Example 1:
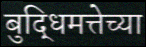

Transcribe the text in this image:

बुद्धिमत्तेच्या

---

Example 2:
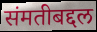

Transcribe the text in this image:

संमतीबद्दल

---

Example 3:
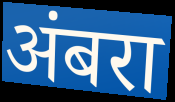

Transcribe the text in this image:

अंबरा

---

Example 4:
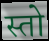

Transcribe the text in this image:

स्तो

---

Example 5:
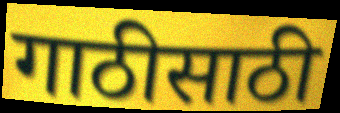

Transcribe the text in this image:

गाठीसाठी